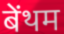
बेंथम